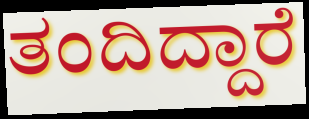
ತಂದಿದ್ದಾರೆ